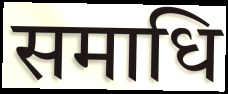
समाधि